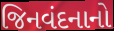
જિનવંદનાનો